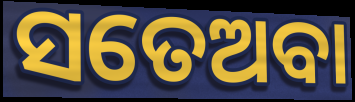
ସତେଅବା